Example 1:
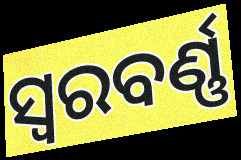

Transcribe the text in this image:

ସ୍ୱରବର୍ଣ୍ଣ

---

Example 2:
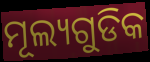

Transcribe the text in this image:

ମୂଲ୍ୟଗୁଡିକ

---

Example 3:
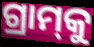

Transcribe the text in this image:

ଗ୍ରାମ୍‌କୁ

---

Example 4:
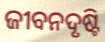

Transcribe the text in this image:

ଜୀବନଦୃଷ୍ଟି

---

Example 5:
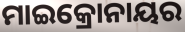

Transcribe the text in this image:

ମାଇକ୍ରୋନାୟର